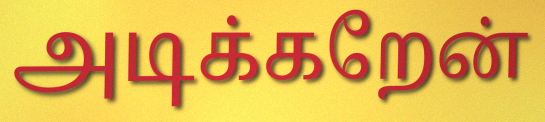
அடிக்கறேன்